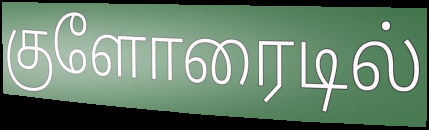
குளோரைடில்